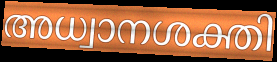
അധ്വാനശക്തി